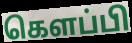
கெளப்பி